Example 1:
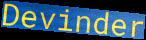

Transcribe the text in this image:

Devinder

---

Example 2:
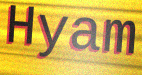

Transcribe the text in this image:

Hyam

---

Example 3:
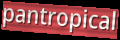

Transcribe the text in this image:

pantropical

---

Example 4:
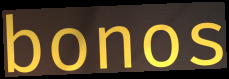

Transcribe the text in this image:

bonos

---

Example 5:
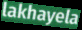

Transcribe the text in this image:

lakhayela